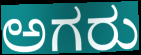
ಅಗರು